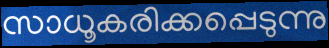
സാധൂകരിക്കപ്പെടുന്നു